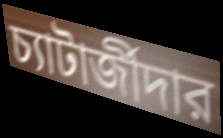
চ্যাটার্জীদার